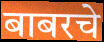
बाबरचे